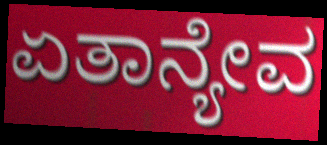
ಏತಾನ್ಯೇವ